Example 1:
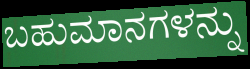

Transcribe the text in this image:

ಬಹುಮಾನಗಳನ್ನು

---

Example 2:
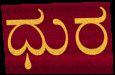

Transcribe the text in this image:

ಧುರ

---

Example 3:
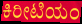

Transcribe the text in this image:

ಕಿರೀಟಿಯಂ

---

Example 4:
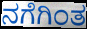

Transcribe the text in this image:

ನಗೆಗಿಂತ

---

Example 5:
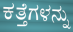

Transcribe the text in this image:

ಕತ್ತೆಗಳನ್ನು